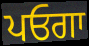
ਪਓਗਾ